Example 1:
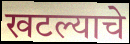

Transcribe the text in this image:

खटल्याचे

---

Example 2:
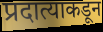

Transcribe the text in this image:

प्रदात्याकडून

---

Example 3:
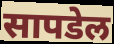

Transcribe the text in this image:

सापडेल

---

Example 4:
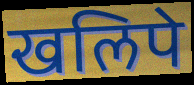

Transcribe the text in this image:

खलिपे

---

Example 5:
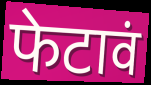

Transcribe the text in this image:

फेटावं